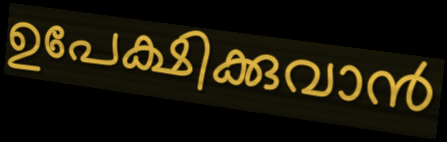
ഉപേക്ഷിക്കുവാൻ